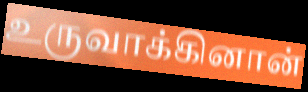
உருவாக்கினான்